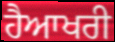
ਹੈਆਖਰੀ